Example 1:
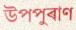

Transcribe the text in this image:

উপপুৰাণ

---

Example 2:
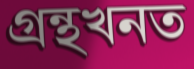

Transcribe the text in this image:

গ্ৰন্থখনত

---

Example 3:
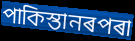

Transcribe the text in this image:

পাকিস্তানৰপৰা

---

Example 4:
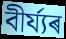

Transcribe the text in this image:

বীৰ্য্যৰ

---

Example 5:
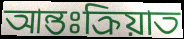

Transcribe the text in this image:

আন্তঃক্ৰিয়াত